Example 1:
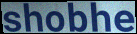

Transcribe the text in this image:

shobhe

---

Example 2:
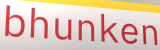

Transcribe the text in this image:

bhunken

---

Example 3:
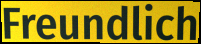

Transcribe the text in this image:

Freundlich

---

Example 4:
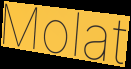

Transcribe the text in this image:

Molat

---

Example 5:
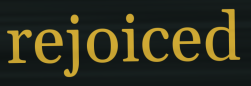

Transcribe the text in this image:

rejoiced